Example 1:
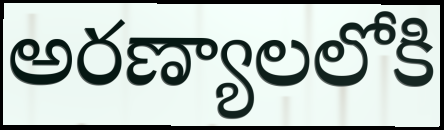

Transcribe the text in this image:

అరణ్యాలలోకి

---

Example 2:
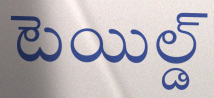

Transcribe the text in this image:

టెయిల్డ్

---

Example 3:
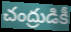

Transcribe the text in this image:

చంద్రుడికీ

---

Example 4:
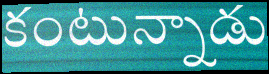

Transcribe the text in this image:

కంటున్నాడు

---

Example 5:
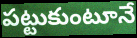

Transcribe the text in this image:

పట్టుకుంటూనే